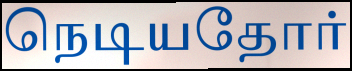
நெடியதோர்